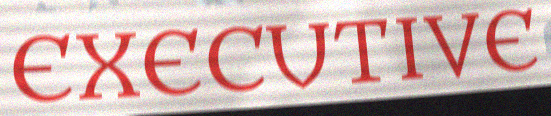
EXECUTIVE